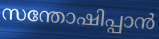
സന്തോഷിപ്പാൻ